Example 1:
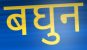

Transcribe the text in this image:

बघुन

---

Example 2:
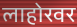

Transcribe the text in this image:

लाहोरवर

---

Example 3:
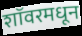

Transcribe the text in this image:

शॉवरमधून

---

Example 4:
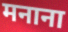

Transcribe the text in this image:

मनाना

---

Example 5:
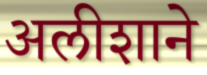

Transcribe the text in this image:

अलीशाने